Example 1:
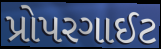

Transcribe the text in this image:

પ્રોપરગાઈટ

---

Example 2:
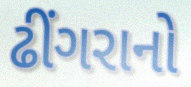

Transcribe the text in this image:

ઢીંગરાનો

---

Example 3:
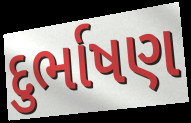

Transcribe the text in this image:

દુર્ભાષણ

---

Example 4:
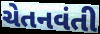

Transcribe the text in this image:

ચેતનવંતી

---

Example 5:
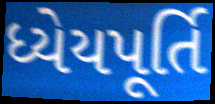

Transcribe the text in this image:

ધ્યેયપૂર્તિ